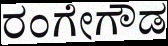
ರಂಗೇಗೌಡ